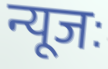
न्यूजः